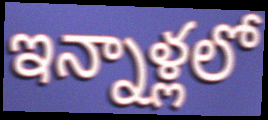
ఇన్నాళ్లలో